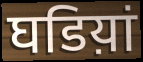
घडिय़ां